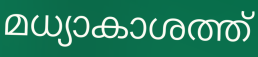
മധ്യാകാശത്ത്